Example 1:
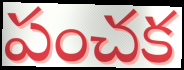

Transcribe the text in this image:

పంచక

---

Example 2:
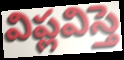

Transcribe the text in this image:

విప్లవిస్తె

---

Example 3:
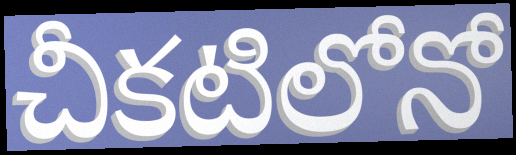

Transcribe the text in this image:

చీకటిలోనో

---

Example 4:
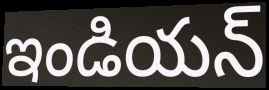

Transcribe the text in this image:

ఇండియన్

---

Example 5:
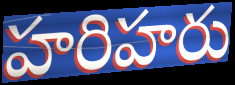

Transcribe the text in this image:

హరిహరు